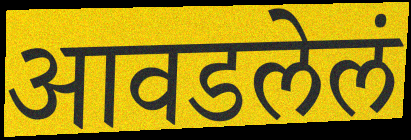
आवडलेलं